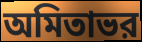
অমিতাভর